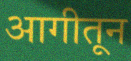
आगीतून